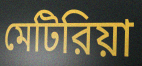
মেটিরিয়া